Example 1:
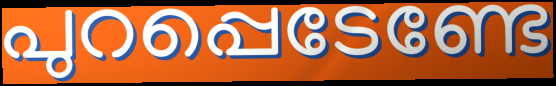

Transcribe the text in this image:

പുറപ്പെടേണ്ടേ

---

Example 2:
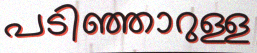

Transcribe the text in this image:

പടിഞ്ഞാറുള്ള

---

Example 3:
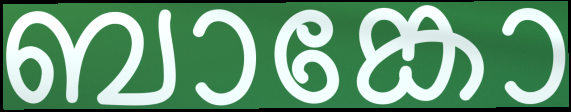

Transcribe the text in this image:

ബാങ്കോ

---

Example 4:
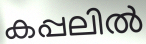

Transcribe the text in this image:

കപ്പലിൽ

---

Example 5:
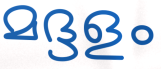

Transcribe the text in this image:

മദ്ദളം